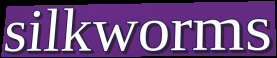
silkworms